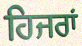
ਹਿਜਰਾਂ